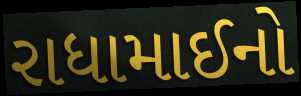
રાધામાઈનો